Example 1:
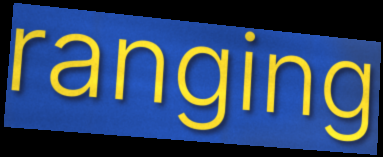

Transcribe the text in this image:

ranging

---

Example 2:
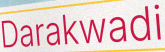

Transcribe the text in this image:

Darakwadi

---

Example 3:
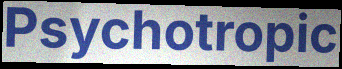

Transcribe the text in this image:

Psychotropic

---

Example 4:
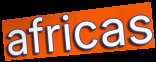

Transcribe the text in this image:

africas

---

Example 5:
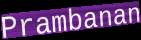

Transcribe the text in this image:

Prambanan